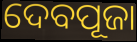
ଦେବପୂଜା